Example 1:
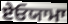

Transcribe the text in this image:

ਏਓਯਾਮਾ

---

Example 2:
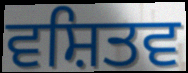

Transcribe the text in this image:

ਵਸ਼ਿਤਵ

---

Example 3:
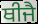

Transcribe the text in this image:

ਥੀਜੈ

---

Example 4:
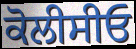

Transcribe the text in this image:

ਕੋਲੀਸੀਓ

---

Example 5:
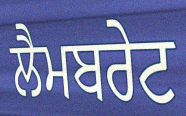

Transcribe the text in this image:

ਲੈਮਬਰੇਟ